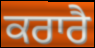
ਕਰਾਰੈ